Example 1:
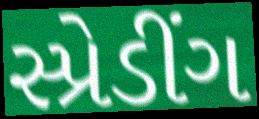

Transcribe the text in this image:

સ્પ્રેડીંગ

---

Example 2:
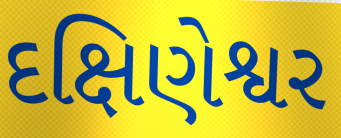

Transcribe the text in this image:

દક્ષિણેશ્વર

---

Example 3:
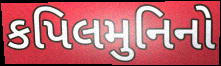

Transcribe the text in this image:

કપિલમુનિનો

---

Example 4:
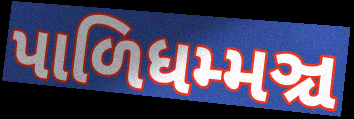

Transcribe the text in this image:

પાળિધમ્મઞ્ચ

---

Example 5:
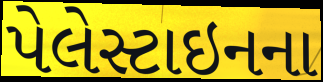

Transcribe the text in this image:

પેલેસ્ટાઇનના